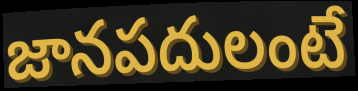
జానపదులంటే